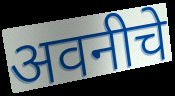
अवनीचे